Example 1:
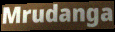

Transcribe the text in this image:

Mrudanga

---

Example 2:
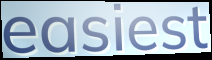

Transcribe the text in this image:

easiest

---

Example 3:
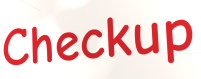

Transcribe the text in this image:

Checkup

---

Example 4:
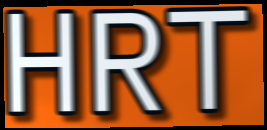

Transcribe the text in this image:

HRT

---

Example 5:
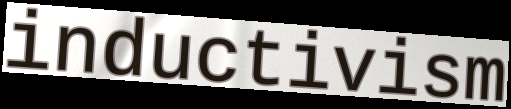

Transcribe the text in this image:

inductivism